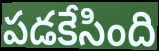
పడకేసింది